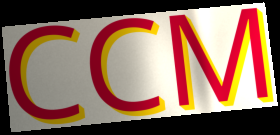
CCM